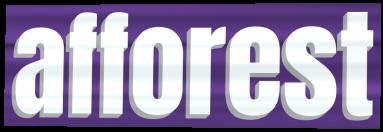
afforest